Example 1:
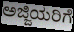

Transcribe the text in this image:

ಅಜ್ಜಿಯರಿಗೆ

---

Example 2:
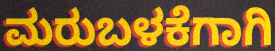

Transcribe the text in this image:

ಮರುಬಳಕೆಗಾಗಿ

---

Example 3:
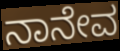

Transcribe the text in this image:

ನಾನೇವ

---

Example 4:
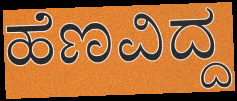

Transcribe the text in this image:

ಹೆಣವಿದ್ದ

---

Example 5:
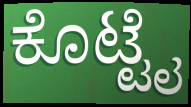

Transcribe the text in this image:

ಕೊಟ್ಟೈ